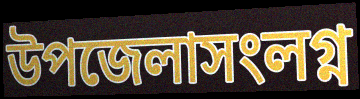
উপজেলাসংলগ্ন